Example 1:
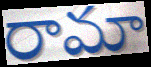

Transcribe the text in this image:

రామా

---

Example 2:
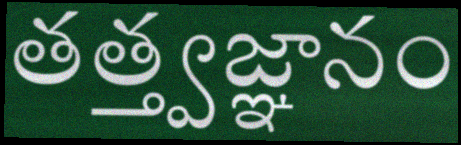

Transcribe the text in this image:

తత్త్వజ్ఞానం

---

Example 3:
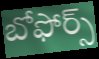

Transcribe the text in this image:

బోఫోర్స్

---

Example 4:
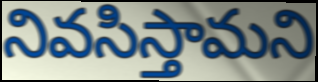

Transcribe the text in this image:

నివసిస్తామని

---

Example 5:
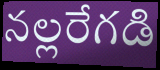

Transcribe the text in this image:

నల్లరేగడి